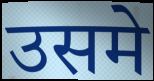
उसमे